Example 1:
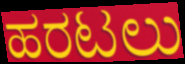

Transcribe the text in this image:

ಹರಟಲು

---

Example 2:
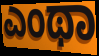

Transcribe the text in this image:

ಎಂಥಾ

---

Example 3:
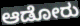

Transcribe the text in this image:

ಆಡೋರು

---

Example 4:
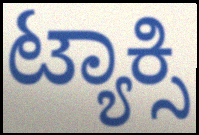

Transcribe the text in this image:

ಟ್ಯಾಕ್ಸಿ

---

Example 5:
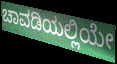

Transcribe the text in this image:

ಚಾವಡಿಯಲ್ಲಿಯೇ